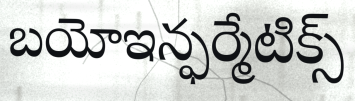
బయోఇన్ఫర్మేటిక్స్